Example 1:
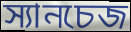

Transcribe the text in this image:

স্যানচেজ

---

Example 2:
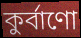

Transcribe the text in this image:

কুর্বাণো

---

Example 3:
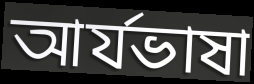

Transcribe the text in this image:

আর্যভাষা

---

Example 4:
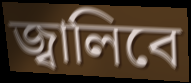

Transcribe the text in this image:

জ্বালিবে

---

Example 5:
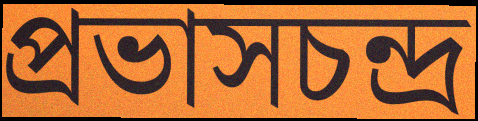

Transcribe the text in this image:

প্রভাসচন্দ্র